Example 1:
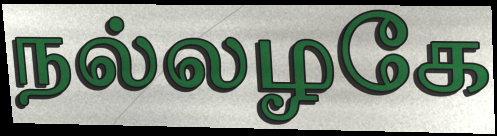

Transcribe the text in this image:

நல்லழகே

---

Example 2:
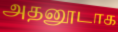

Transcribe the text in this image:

அதனூடாக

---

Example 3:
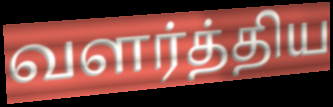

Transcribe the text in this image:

வளர்த்திய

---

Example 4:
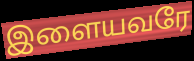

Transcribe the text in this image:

இளையவரே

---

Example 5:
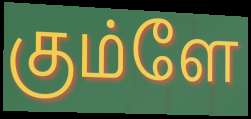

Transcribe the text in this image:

கும்ளே